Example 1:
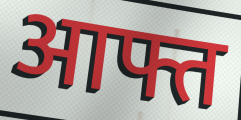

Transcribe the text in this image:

आफ्त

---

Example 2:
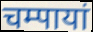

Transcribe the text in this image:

चम्पायां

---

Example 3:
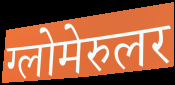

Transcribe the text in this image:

ग्लोमेरुलर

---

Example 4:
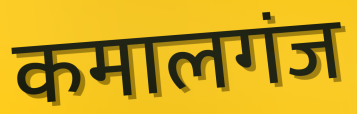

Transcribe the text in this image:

कमालगंज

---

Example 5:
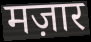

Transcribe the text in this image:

मज़ार